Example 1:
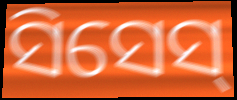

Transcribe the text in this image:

ସିସେସ୍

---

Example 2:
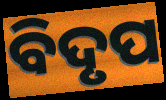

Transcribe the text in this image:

ବିଦୃପ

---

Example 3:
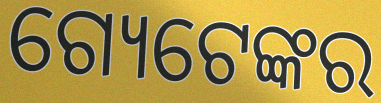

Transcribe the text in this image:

ଗ୍ୟେଟେଙ୍କର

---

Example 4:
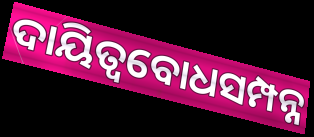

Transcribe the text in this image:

ଦାୟିତ୍ୱବୋଧସମ୍ପନ୍ନ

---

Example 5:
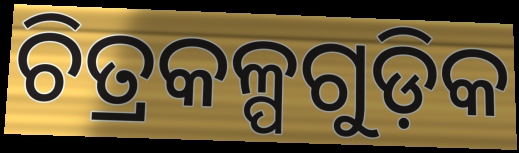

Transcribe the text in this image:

ଚିତ୍ରକଳ୍ପଗୁଡ଼ିକ